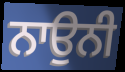
ਨਾਉਨੀ